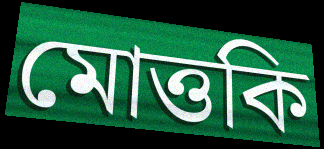
মোত্তকি